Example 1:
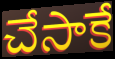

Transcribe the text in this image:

చేసాకే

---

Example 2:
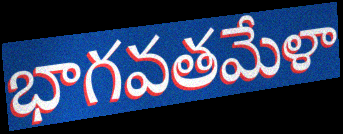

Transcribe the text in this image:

భాగవతమేళా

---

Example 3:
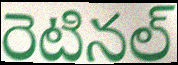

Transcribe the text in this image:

రెటినల్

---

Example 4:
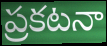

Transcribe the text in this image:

ప్రకటనా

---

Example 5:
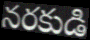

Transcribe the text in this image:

నరకుడి